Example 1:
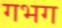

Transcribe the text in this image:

गभग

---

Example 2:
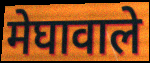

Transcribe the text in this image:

मेघावाले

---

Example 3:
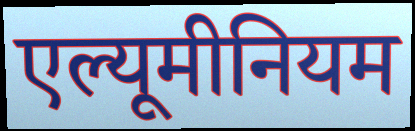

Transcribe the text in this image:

एल्‍यूमीनियम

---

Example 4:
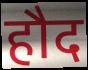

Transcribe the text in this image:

हौद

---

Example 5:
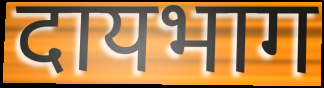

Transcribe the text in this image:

दायभाग